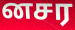
னசர